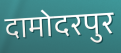
दामोदरपुर